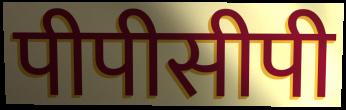
पीपीसीपी